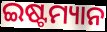
ଇଷ୍ଟମ୍ୟାନ